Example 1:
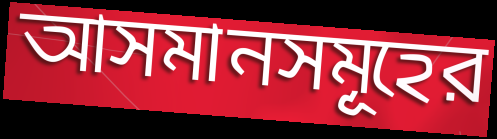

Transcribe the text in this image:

আসমানসমূহের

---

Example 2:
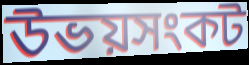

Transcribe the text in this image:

উভয়সংকট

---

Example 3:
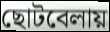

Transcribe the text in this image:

ছোটবেলায়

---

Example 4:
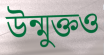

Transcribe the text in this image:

উন্মুক্তও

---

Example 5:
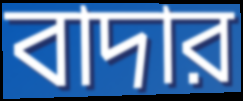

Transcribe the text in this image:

বাদার